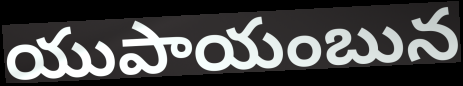
యుపాయంబున